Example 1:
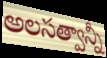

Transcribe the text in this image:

అలసత్వాన్నీ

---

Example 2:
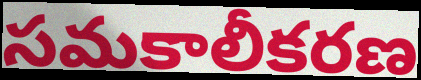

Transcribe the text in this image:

సమకాలీకరణ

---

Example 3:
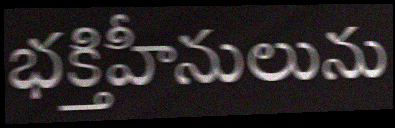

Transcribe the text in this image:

భక్తిహీనులును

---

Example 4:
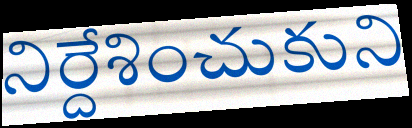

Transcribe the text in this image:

నిర్దేశించుకుని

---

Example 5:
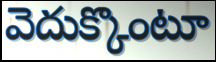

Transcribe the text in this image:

వెదుక్కొంటూ